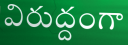
విరుద్దంగా